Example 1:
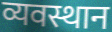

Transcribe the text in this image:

व्यवस्थान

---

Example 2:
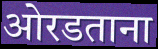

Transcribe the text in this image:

ओरडताना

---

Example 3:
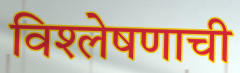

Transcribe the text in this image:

विश्लेषणाची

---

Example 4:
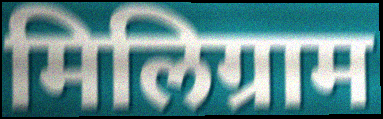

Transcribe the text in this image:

मिलिग्राम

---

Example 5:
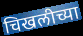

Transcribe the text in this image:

चिखलीच्या